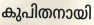
കുപിതനായി